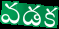
వడక